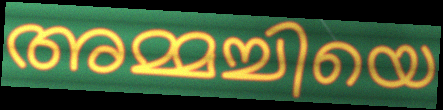
അമ്മച്ചിയെ